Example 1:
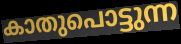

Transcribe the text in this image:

കാതുപൊട്ടുന്ന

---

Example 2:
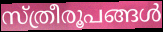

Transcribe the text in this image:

സ്ത്രീരൂപങ്ങൾ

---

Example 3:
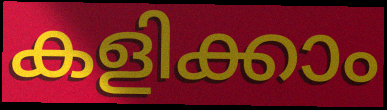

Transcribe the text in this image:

കളിക്കാം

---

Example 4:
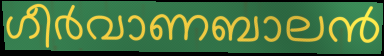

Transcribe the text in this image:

ഗീർവാണബാലൻ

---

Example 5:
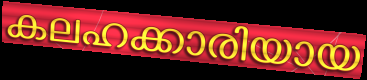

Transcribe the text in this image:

കലഹക്കാരിയായ